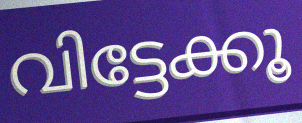
വിട്ടേക്കൂ